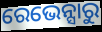
ରେଭେନ୍ସାରୁ